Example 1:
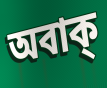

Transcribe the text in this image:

অবাক্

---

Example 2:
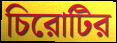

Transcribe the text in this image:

চিরোটির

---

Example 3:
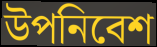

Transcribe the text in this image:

উপনিবেশ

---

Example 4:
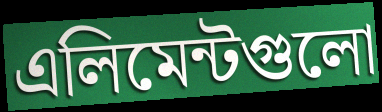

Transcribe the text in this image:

এলিমেন্টগুলো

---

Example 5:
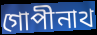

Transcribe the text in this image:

গোপীনাথ